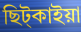
ছিট্কাইয়া